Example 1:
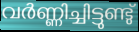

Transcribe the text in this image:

വർണ്ണിച്ചിട്ടുണ്ടു്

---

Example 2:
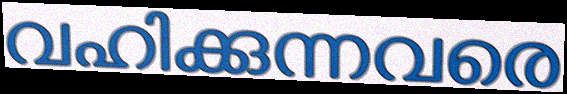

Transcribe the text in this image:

വഹിക്കുന്നവരെ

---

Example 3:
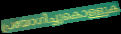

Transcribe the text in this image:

പ്രയോഗിച്ചുകൊള്ളുക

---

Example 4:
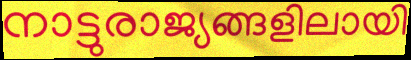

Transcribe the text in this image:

നാട്ടുരാജ്യങ്ങളിലായി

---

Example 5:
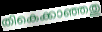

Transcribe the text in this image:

തികെക്കാഞ്ഞതു